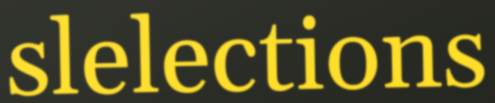
slelections